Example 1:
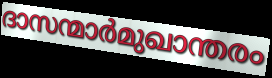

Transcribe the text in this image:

ദാസന്മാർമുഖാന്തരം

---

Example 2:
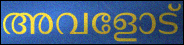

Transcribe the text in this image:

അവളോട്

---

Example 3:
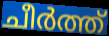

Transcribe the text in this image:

ചീർത്ത്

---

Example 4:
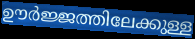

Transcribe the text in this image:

ഊർജ്ജത്തിലേക്കുള്ള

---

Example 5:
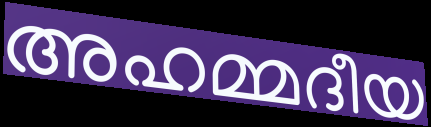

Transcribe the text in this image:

അഹമ്മദീയ